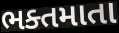
ભક્તમાતા